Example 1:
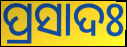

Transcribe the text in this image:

ପ୍ରସାଦଃ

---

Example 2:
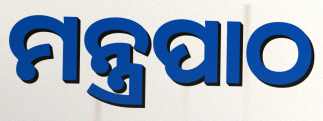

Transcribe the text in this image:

ମନ୍ତ୍ରପାଠ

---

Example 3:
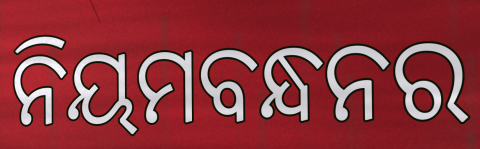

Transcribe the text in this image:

ନିୟମବନ୍ଧନର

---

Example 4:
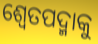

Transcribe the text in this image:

ଶ୍ୱେତପଦ୍ମାକୁ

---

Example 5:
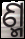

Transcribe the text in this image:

ଣ୍ମ